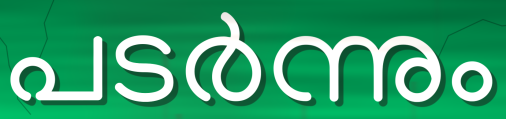
പടർന്നും